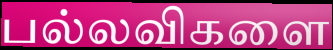
பல்லவிகளை